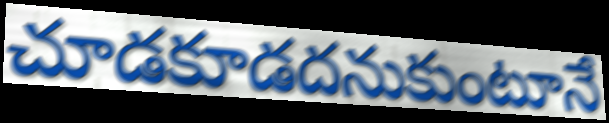
చూడకూడదనుకుంటూనే